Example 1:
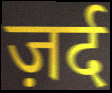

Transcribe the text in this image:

ज़र्द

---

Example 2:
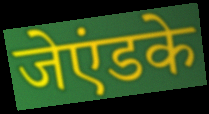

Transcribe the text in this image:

जेएंडके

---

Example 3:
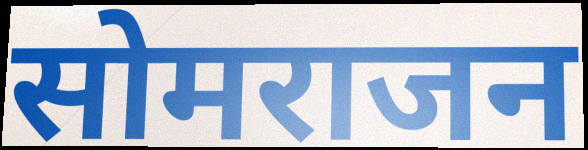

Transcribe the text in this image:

सोमराजन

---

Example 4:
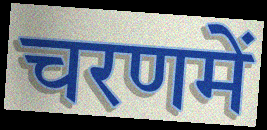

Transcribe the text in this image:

चरणमें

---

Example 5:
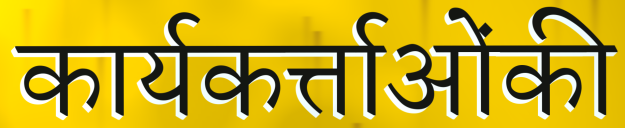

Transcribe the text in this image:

कार्यकर्त्ताओंकी